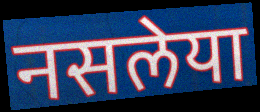
नसलेया